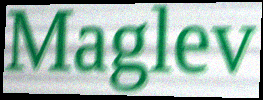
Maglev